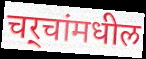
चर्चांमधील